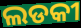
ଲଡକୀ